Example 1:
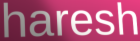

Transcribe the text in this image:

haresh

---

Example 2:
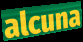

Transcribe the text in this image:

alcuna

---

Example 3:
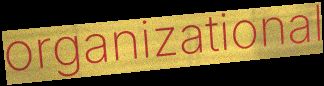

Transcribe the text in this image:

organizational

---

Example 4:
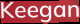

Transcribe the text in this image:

Keegan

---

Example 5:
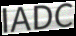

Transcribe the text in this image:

IADC